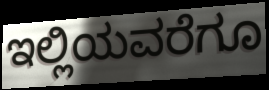
ಇಲ್ಲಿಯವರೆಗೂ